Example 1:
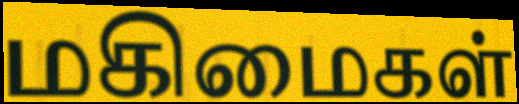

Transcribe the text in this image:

மகிமைகள்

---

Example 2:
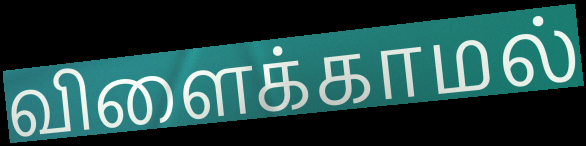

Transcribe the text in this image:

விளைக்காமல்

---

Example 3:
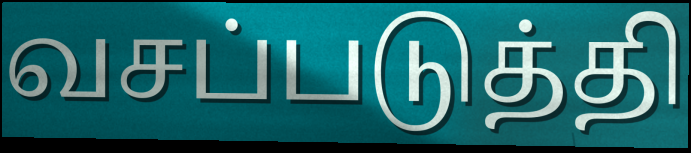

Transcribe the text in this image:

வசப்படுத்தி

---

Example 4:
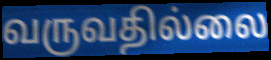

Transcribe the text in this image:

வருவதில்லை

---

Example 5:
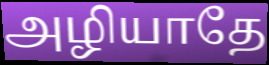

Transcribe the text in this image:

அழியாதே